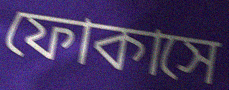
ফোকাসে